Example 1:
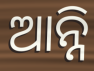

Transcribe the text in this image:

ଆନ୍ନି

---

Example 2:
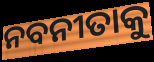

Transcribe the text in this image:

ନବନୀତାକୁ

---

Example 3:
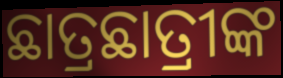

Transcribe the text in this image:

ଛାତ୍ରଛାତ୍ରୀଙ୍କ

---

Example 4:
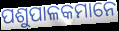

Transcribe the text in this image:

ପଶୁପାଳକମାନେ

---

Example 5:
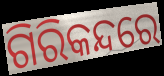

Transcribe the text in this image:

ଗିରିକନ୍ଦରେ